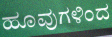
ಹೂವುಗಳಿಂದ